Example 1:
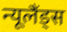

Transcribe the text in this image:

न्यूलैंड्स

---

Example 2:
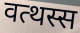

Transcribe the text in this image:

वत्थस्स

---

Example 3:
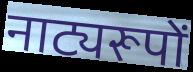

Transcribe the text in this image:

नाट्यरूपों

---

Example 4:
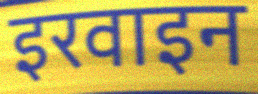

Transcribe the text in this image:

इरवाइन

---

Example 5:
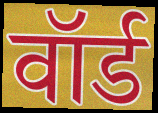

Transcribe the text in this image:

वॉर्ड